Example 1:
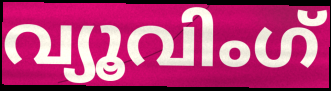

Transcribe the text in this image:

വ്യൂവിംഗ്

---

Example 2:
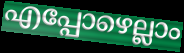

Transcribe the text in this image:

എപ്പോഴെല്ലാം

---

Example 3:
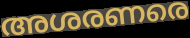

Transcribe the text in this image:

അശരണരെ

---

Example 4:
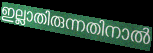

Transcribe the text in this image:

ഇല്ലാതിരുന്നതിനാൽ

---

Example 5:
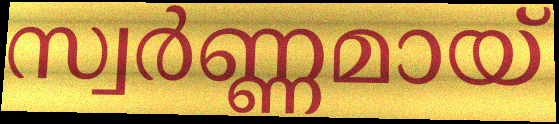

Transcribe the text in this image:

സ്വർണ്ണമായ്